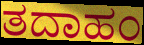
ತದಾಹಂ